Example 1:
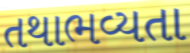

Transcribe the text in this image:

તથાભવ્યતા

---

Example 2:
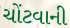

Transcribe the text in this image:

ચોંટવાની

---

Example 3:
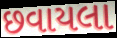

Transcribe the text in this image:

છવાયલા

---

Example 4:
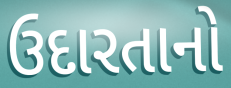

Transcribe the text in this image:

ઉદારતાનો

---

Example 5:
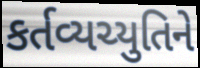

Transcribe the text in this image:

કર્તવ્યચ્યુતિને